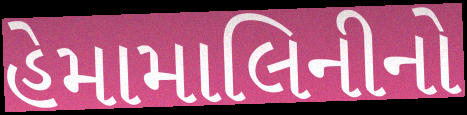
હેમામાલિનીનો